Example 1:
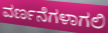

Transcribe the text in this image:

ವರ್ಣನೆಗಳಾಗಲಿ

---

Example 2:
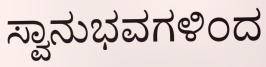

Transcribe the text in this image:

ಸ್ವಾನುಭವಗಳಿಂದ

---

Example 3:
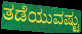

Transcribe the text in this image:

ತಡೆಯುವಷ್ಟು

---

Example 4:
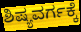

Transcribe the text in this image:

ಶಿಷ್ಯವರ್ಗಕ್ಕೆ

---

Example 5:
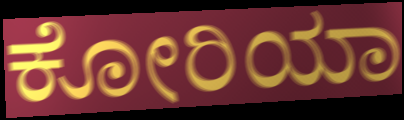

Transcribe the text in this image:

ಕೋರಿಯಾ